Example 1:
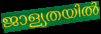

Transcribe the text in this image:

ജാള്യതയിൽ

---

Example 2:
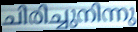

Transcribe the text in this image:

ചിരിച്ചുനിന്നു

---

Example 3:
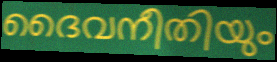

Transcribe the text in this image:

ദൈവനീതിയും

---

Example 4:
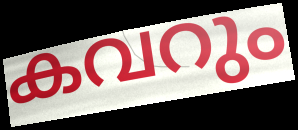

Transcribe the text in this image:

കവറും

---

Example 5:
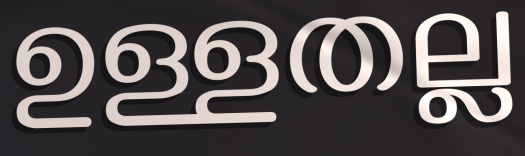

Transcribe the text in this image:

ഉള്ളതല്ല